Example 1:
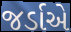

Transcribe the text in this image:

જર્ડાએ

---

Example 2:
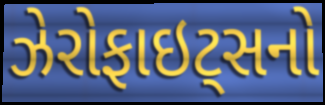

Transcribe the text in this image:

ઝેરોફાઇટ્સનો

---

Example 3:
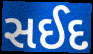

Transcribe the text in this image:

સઈદ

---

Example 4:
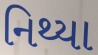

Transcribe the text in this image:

નિથ્યા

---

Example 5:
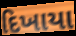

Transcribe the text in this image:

દિખાયા